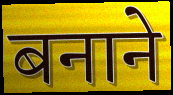
बनाने